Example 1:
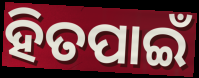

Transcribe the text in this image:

ହିତପାଇଁ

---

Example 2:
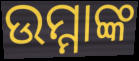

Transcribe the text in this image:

ଉମ୍ମାଙ୍କ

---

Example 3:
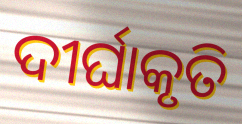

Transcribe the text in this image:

ଦୀର୍ଘାକୃତି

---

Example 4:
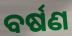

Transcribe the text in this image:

ବର୍ଷଣ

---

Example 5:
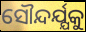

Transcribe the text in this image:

ସୌନ୍ଦର୍ଯ୍ଯକୁ